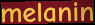
melanin